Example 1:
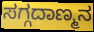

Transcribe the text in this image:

ಸಗ್ಗದಾಣ್ಮನ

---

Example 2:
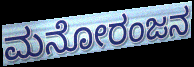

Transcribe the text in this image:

ಮನೋರಂಜನ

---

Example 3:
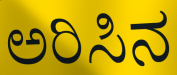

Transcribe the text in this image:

ಅರಿಸಿನ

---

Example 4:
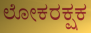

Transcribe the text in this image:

ಲೋಕರಕ್ಷಕ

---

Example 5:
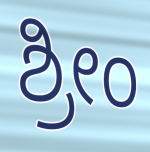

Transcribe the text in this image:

ಶ್ರೀಂ